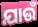
ଯାଉଁ